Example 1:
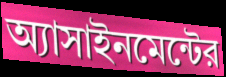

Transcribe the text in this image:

অ্যাসাইনমেন্টের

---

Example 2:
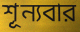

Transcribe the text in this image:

শূন্যবার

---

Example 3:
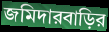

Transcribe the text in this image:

জমিদারবাড়ির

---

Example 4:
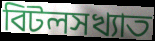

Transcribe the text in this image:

বিটলসখ্যাত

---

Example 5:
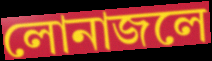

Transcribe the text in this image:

লোনাজলে